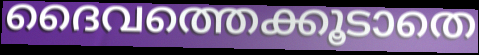
ദൈവത്തെക്കൂടാതെ